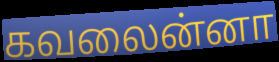
கவலைன்னா